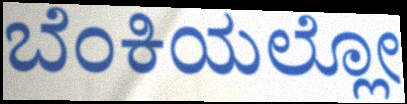
ಬೆಂಕಿಯಲ್ಲೋ